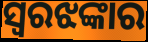
ସ୍ୱରଝଙ୍କାର